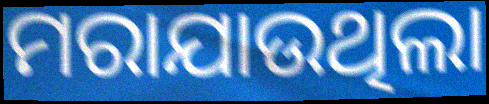
ମରାଯାଉଥିଲା